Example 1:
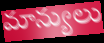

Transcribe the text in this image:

మాన్యులు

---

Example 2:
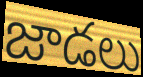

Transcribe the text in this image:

జాడలు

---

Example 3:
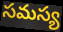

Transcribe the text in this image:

సమస్య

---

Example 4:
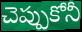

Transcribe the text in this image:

చెప్పుకోనీ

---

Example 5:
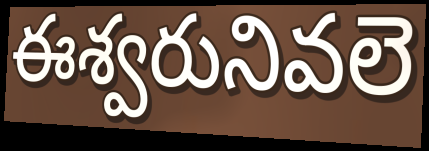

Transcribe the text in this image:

ఈశ్వరునివలె